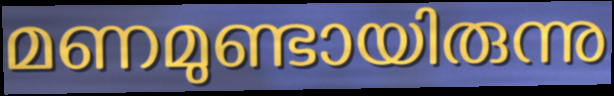
മണമുണ്ടായിരുന്നു